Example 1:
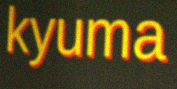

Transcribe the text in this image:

kyuma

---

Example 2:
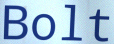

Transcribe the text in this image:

Bolt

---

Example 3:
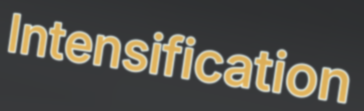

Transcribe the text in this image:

Intensification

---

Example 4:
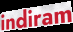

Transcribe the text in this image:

indiram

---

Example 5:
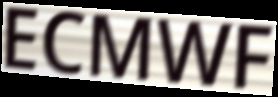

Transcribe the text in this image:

ECMWF